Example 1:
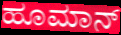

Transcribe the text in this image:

ಹೂಮಾನ್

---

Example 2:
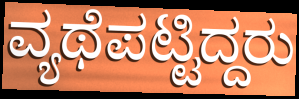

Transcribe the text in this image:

ವ್ಯಥೆಪಟ್ಟಿದ್ದರು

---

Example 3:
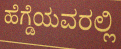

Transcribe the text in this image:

ಹೆಗ್ಡೆಯವರಲ್ಲಿ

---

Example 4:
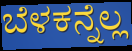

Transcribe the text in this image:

ಬೆಳಕನ್ನೆಲ್ಲ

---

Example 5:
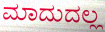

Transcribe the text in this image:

ಮಾದುದಲ್ಲ